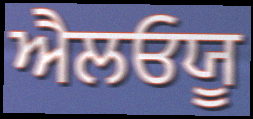
ਐਲਓਯੂ